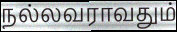
நல்லவராவதும்